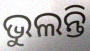
ଭୁଲନ୍ତି